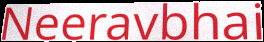
Neeravbhai